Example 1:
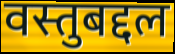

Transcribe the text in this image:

वस्तुबद्दल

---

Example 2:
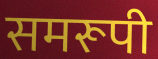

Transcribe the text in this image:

समरूपी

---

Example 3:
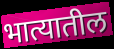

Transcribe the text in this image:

भात्यातील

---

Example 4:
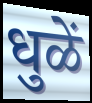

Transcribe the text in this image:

धुळें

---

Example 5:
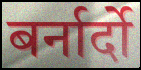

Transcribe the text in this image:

बर्नार्दो